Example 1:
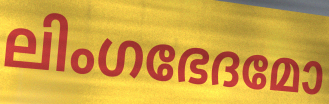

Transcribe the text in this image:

ലിംഗഭേദമോ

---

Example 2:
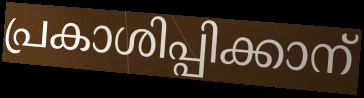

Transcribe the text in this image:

പ്രകാശിപ്പിക്കാന്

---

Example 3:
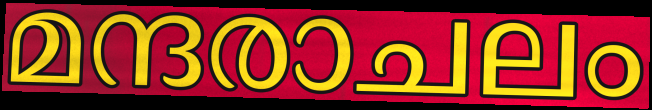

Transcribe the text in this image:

മന്ദരാചലം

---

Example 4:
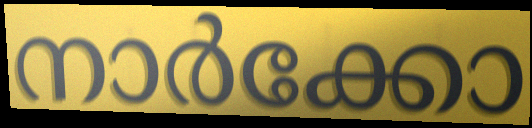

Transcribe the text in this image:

നാർക്കോ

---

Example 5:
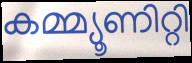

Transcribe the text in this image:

കമ്മ്യൂണിറ്റി